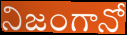
నిజంగానో